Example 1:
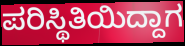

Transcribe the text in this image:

ಪರಿಸ್ಥಿತಿಯಿದ್ದಾಗ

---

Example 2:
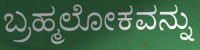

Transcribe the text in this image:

ಬ್ರಹ್ಮಲೋಕವನ್ನು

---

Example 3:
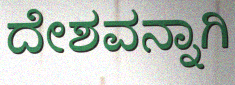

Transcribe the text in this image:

ದೇಶವನ್ನಾಗಿ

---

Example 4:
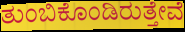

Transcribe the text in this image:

ತುಂಬಿಕೊಂಡಿರುತ್ತೇವೆ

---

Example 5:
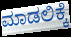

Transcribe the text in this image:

ಮಾಡಲಿಕ್ಕೆ